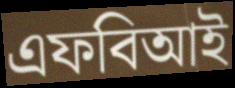
এফবিআই